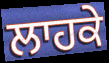
ਲਾਹਕੇ